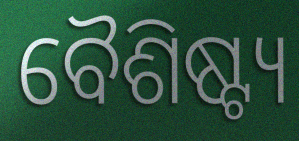
ବୈଶିଷ୍ଟ୍ୟ